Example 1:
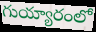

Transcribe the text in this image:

గుయ్యారంలో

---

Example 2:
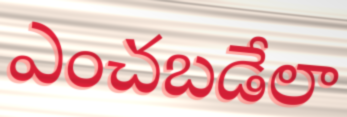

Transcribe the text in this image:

ఎంచబడేలా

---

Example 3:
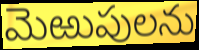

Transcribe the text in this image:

మెఱుపులను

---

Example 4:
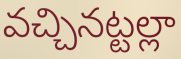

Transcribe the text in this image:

వచ్చినట్టల్లా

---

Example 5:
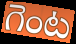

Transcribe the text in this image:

గెంట